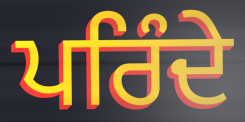
ਪਰਿੰਦੇ